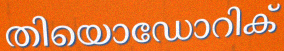
തിയൊഡോറിക്